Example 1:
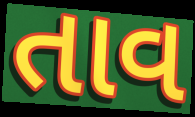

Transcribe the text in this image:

તાવ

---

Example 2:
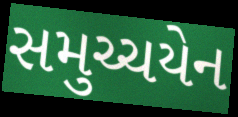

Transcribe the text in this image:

સમુચ્ચયેન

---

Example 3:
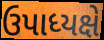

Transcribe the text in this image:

ઉપાધ્યક્ષે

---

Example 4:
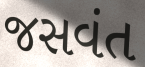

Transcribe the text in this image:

જસવંત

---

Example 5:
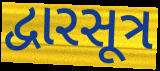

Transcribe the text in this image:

દ્વારસૂત્ર